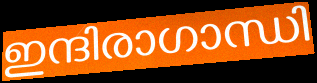
ഇന്ദിരാഗാന്ധി